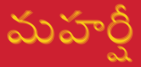
మహర్షీ